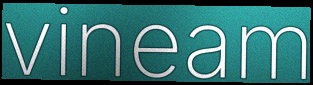
vineam